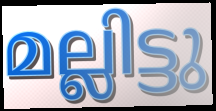
മല്ലിട്ടു